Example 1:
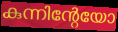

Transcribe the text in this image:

കുന്നിന്റേയോ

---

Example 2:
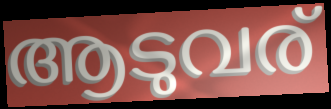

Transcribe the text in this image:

ആടുവര്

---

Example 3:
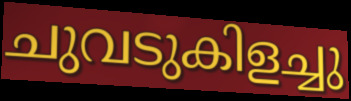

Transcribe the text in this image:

ചുവടുകിളച്ചു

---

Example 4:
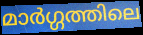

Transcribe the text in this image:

മാർഗ്ഗത്തിലെ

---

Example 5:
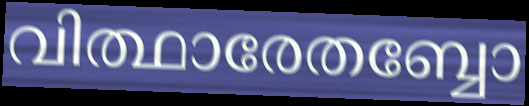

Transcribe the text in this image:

വിത്ഥാരേതബ്ബോ